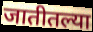
जातीतल्या